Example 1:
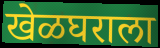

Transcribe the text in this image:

खेळघराला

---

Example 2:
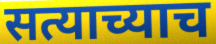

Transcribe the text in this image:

सत्याच्याच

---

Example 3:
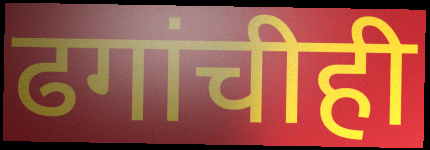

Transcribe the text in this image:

ढगांचीही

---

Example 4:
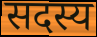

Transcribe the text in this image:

सदस्य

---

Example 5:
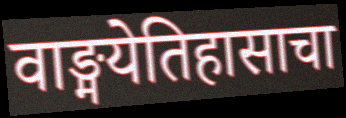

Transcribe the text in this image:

वाङ्मयेतिहासाचा